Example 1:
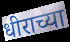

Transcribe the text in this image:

धीराच्या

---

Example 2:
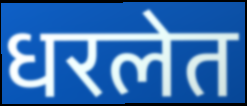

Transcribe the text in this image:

धरलेत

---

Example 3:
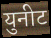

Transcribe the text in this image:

युनीट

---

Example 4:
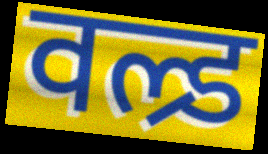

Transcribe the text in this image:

वल्र्ड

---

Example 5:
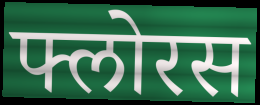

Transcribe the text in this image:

फ्लोरस